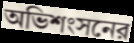
অভিশংসনের